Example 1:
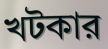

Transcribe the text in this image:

খটকার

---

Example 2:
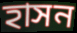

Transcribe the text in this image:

হাসন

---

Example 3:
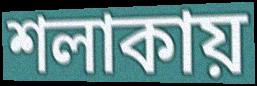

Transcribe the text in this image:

শলাকায়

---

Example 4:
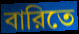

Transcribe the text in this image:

বারিতে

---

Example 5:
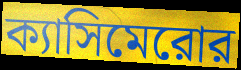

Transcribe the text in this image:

ক্যাসিমেরোর